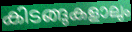
കിടങ്ങുകളാലും